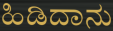
ಹಿಡಿದಾನು